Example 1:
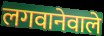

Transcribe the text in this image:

लगवानेवाले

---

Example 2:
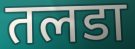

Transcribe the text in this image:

तलडा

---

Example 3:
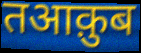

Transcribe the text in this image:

तआक़ुब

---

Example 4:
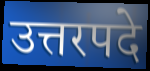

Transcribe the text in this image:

उत्तरपदे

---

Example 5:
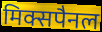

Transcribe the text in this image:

मिक्सपैनल